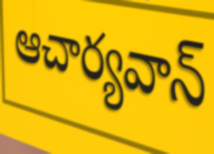
ఆచార్యవాన్